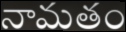
నామతం